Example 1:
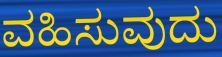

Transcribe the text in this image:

ವಹಿಸುವುದು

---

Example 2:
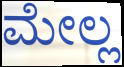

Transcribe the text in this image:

ಮೇಲ್ಲ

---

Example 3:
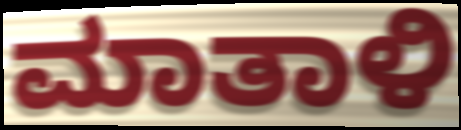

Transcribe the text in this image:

ಮಾತಾಳಿ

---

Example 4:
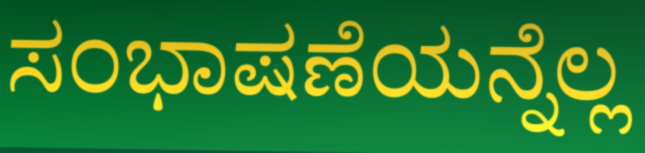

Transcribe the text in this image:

ಸಂಭಾಷಣೆಯನ್ನೆಲ್ಲ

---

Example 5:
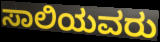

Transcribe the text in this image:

ಸಾಲಿಯವರು